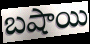
బషాయి